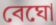
বেঘো